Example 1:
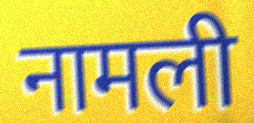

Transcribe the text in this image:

नामली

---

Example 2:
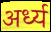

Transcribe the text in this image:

अर्ध्य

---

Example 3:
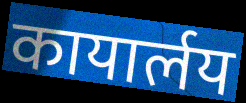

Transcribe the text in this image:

कायार्लय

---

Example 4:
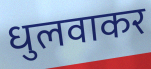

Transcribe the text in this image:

धुलवाकर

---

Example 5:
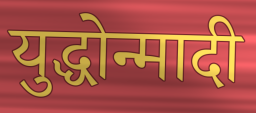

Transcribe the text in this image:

युद्धोन्मादी